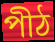
পীঠ